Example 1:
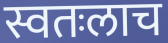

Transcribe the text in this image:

स्वतःलाच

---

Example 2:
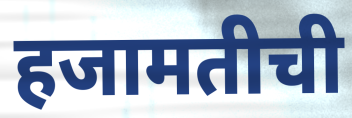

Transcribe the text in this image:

हजामतीची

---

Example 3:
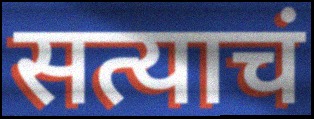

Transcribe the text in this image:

सत्याचं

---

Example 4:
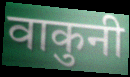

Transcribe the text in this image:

वाकुनी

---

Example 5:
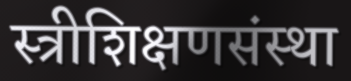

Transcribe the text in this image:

स्त्रीशिक्षणसंस्था